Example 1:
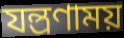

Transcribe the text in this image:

যন্ত্রণাময়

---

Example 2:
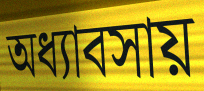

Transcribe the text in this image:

অধ্যাবসায়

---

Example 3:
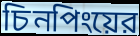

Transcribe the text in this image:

চিনপিংয়ের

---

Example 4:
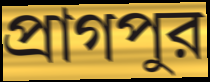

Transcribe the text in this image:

প্রাগপুর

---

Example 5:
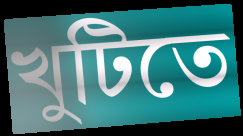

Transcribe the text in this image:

খুটিতে